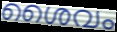
ശൈവം